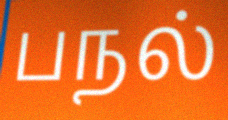
பநல்